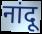
नांदू